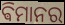
ଵିମାନର